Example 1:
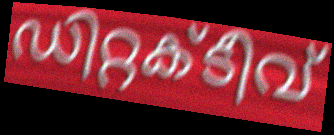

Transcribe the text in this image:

ഡിറ്റക്ടീവ്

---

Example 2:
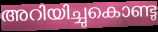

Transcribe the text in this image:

അറിയിച്ചുകൊണ്ടു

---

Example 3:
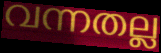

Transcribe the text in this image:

വന്നതല്ല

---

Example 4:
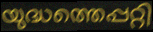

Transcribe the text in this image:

യുദ്ധത്തെപ്പറ്റി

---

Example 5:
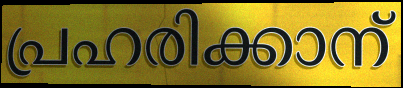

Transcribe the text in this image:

പ്രഹരിക്കാന്